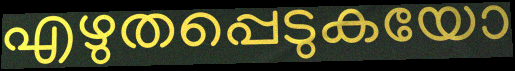
എഴുതപ്പെടുകയോ